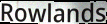
Rowlands